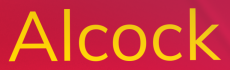
Alcock